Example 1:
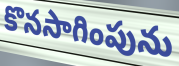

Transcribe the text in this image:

కొనసాగింపును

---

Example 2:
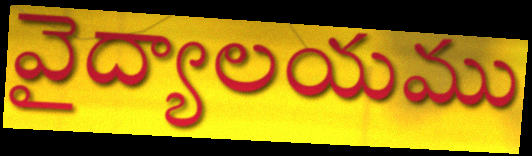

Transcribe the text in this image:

వైద్యాలయము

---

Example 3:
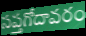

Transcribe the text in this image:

సప్తగోదావరం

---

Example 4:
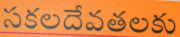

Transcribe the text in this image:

సకలదేవతలకు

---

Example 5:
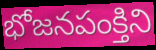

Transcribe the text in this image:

భోజనపంక్తిని